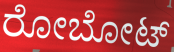
ರೋಬೋಟ್